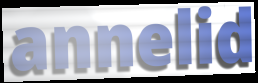
annelid